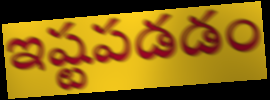
ఇష్టపడడం